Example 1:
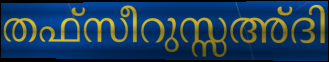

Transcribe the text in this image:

തഫ്സീറുസ്സഅ്ദി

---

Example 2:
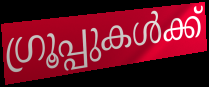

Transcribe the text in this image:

ഗ്രൂപ്പുകൾക്ക്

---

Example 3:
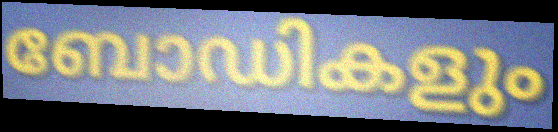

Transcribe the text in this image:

ബോഡികളും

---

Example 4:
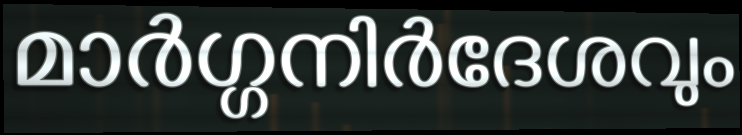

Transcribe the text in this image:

മാർഗ്ഗനിർദേശവും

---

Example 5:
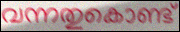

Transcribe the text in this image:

വന്നതുകൊണ്ട്